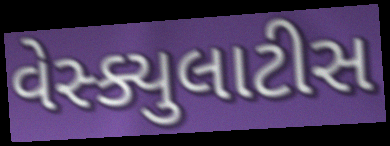
વેસ્ક્યુલાટીસ